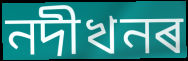
নদীখনৰ